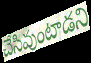
చేసివుంటాడని